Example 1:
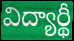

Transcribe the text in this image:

విద్యార్థీ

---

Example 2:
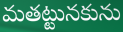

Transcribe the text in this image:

మతట్టునకును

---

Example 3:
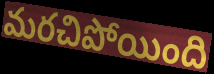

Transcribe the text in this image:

మరచిపోయింది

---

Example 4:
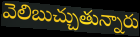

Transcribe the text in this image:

వెలిబుచ్చుతున్నారు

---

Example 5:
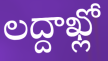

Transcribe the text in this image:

లద్దాఖ్లో